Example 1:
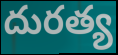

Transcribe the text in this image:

దురత్య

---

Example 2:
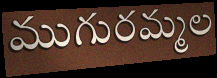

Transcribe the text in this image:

ముగురమ్మల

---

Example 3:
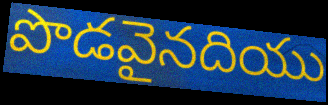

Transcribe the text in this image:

పొడవైనదియు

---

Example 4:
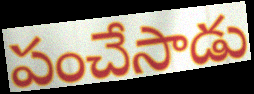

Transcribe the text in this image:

పంచేసాడు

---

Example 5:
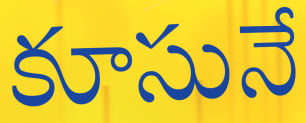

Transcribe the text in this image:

కూసునే